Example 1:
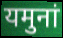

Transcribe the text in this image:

यमुनां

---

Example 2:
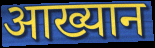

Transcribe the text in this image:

आख्यान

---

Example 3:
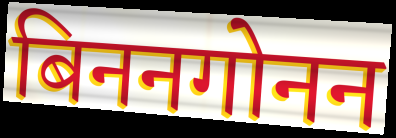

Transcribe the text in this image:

बिननगोनन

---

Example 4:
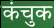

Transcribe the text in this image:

कंचुक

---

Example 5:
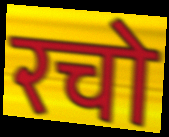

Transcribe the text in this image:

रचो